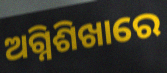
ଅଗ୍ନିଶିଖାରେ